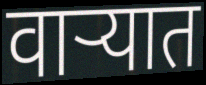
वाऱ्यात